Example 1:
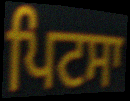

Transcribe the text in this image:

ਪਿਟਸਾ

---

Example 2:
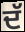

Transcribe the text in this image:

ਦੱ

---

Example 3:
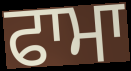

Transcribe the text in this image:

ਫਾਮਾ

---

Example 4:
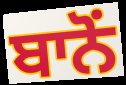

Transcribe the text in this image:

ਬਾਨੋਂ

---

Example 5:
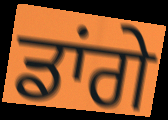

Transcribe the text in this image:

ਡਾਂਗੇ